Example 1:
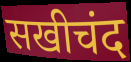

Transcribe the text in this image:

सखीचंद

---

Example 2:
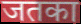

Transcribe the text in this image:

जतका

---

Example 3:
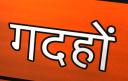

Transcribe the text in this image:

गदहों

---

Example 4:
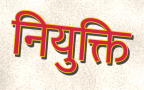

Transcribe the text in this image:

नियुक्ति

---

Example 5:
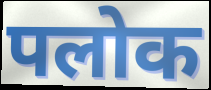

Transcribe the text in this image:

पलोक